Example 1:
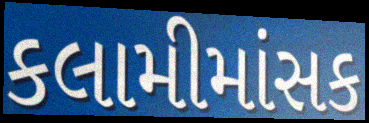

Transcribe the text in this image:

કલામીમાંસક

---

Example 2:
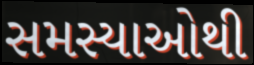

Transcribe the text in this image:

સમસ્યાઓથી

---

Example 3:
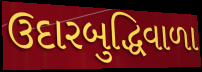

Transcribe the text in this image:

ઉદારબુદ્ધિવાળા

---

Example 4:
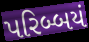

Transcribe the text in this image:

પરિબ્બયં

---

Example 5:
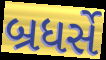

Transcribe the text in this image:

બ્રધર્સે